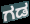
ಗಡ